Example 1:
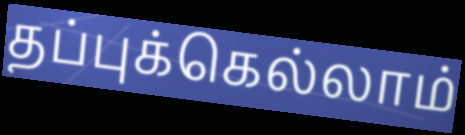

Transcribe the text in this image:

தப்புக்கெல்லாம்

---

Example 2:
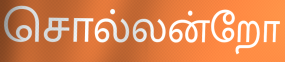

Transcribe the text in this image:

சொல்லன்றோ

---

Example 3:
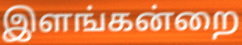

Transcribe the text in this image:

இளங்கன்றை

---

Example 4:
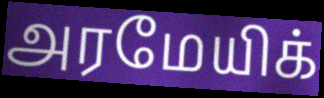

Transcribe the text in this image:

அரமேயிக்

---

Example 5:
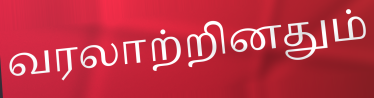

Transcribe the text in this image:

வரலாற்றினதும்